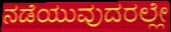
ನಡೆಯುವುದರಲ್ಲೇ